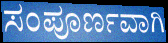
ಸಂಪೂರ್ಣವಾಗಿ